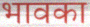
भावका